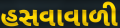
હસવાવાળી